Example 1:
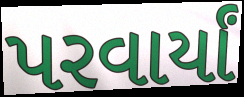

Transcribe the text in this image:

પરવાર્યાં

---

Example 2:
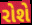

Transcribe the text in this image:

રોશે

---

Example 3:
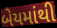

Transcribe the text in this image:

બેયમાંથી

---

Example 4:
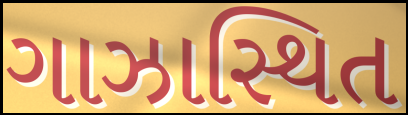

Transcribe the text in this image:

ગાઝાસ્થિત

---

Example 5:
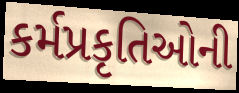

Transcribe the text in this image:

કર્મપ્રકૃતિઓની